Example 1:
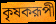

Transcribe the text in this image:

কৃষকরূপী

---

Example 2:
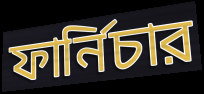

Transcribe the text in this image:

ফার্নিচার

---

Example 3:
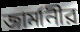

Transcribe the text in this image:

জার্মানীর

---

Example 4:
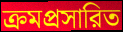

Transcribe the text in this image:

ক্রমপ্রসারিত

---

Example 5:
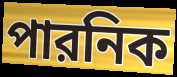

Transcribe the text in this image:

পারনিক